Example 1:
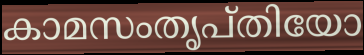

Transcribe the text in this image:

കാമസംതൃപ്തിയോ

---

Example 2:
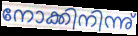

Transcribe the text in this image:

നോക്കിനിന്നു്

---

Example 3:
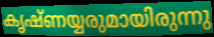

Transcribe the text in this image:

കൃഷ്ണയ്യരുമായിരുന്നു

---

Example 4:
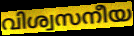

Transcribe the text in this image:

വിശ്വസനീയ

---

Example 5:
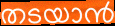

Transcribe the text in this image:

തടയാൻ